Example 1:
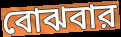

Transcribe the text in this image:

বোঝবার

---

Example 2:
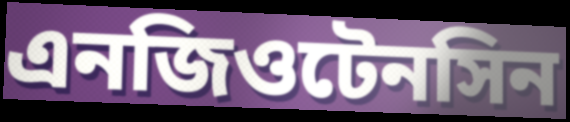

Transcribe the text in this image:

এনজিওটেনসিন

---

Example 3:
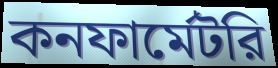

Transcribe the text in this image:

কনফার্মেটরি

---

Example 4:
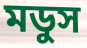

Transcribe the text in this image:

মডুস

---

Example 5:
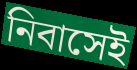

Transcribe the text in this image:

নিবাসেই